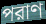
পরাণ